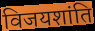
विजयशांति